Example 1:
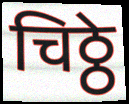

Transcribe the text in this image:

चिठ्ठे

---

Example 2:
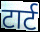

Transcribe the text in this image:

टार्ट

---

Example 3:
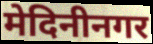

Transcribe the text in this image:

मेदिनीनगर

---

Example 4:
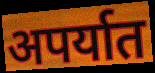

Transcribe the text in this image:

अपर्यात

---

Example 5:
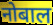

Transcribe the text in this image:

नोबाल